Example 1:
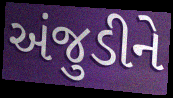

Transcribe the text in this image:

અંજુડીને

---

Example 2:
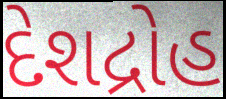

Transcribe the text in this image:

દેશદ્રોહ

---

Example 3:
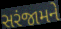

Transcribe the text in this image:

સરંજામને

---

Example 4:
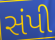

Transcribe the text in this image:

સંપી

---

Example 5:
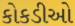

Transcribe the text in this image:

કોકડીઓ